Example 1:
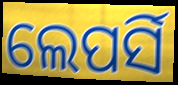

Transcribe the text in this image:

ଲେପର୍ସି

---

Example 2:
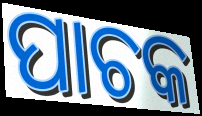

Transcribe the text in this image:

ପାଚକ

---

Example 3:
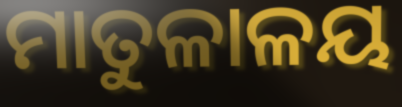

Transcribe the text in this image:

ମାତୁଳାଳୟ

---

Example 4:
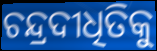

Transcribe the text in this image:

ଚନ୍ଦ୍ରଦୀଧିତିକୁ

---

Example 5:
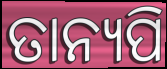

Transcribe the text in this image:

ତାନ୍ୟପି